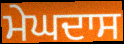
ਮੇਘਦਾਸ